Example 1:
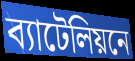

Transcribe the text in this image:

ব্যাটেলিয়নে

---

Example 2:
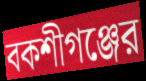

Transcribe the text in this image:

বকশীগঞ্জের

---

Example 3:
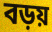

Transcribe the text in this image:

বড়য়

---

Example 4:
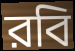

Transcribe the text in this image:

রবি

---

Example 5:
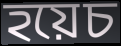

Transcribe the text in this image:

হয়েচ